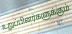
உறுப்பினர்களுக்கும்